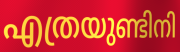
എത്രയുണ്ടിനി